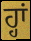
ਹ੍ਹਾਂ